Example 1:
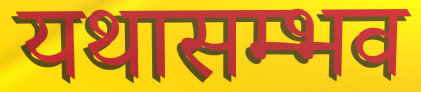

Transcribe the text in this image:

यथासम्भव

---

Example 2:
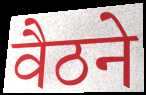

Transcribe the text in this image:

वैठने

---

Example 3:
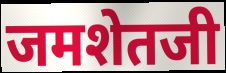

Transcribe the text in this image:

जमशेतजी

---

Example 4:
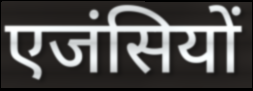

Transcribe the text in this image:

एजंसियों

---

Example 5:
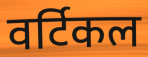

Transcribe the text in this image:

वर्टिकल